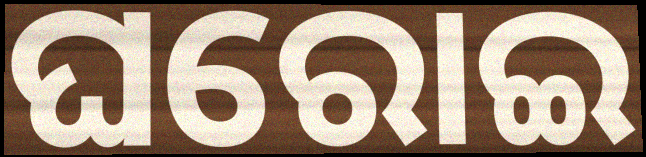
ଘରୋଇ